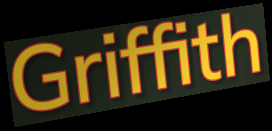
Griffith